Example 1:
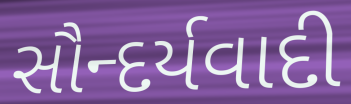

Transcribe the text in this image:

સૌન્દર્યવાદી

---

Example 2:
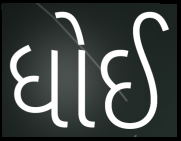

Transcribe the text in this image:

ધોઈ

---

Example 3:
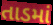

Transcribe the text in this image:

તાડમાં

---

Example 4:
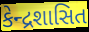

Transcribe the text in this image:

કેન્દ્રશાસિત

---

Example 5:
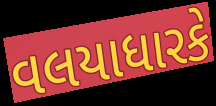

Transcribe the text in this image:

વલયાધારકે